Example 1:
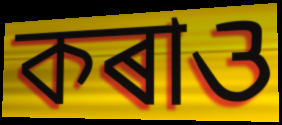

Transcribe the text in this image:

কৰাও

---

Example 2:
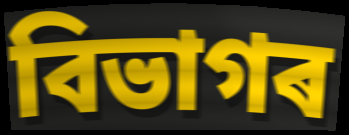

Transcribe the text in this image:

বিভাগৰ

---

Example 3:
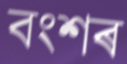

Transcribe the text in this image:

বংশৰ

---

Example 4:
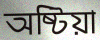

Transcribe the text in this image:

অষ্টিয়া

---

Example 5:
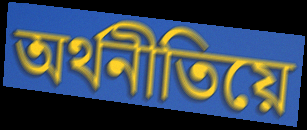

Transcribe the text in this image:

অৰ্থনীতিয়ে